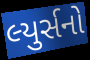
લ્યુર્સનો